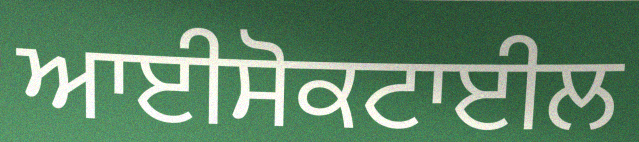
ਆਈਸੋਕਟਾਈਲ